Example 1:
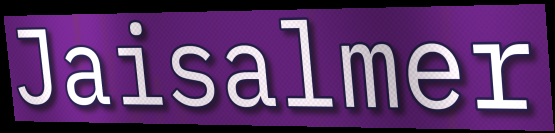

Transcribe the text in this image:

Jaisalmer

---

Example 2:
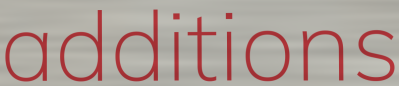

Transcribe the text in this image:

additions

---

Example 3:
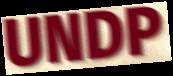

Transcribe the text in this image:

UNDP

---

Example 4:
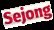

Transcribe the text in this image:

Sejong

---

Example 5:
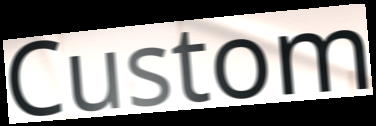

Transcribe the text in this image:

Custom